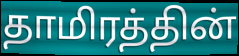
தாமிரத்தின்